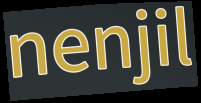
nenjil